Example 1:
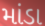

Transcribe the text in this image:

માંડા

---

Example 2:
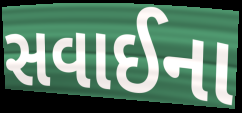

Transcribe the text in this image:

સવાઈના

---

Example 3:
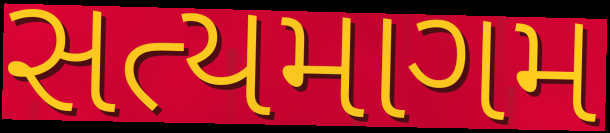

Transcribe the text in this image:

સત્યમાગમ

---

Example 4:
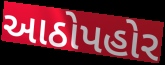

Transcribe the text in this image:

આઠોપહોર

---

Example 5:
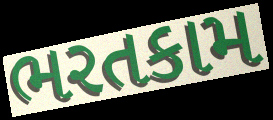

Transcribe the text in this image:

ભરતકામ